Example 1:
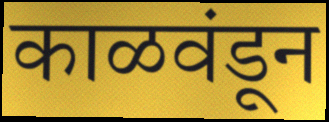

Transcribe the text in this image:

काळवंडून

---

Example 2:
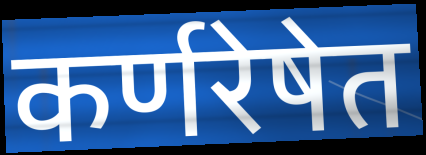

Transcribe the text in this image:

कर्णरेषेत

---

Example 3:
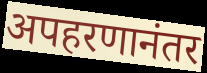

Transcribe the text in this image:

अपहरणानंतर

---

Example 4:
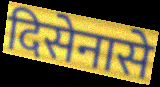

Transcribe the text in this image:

दिसेनासे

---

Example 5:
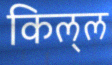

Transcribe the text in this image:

किल्ल